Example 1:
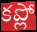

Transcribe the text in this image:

కప్లో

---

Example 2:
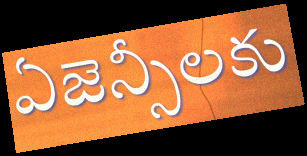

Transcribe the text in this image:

ఏజెన్సీలకు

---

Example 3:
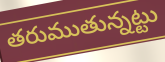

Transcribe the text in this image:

తరుముతున్నట్టు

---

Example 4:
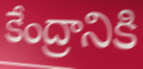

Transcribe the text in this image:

కేంద్రానికి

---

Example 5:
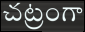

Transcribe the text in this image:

చట్రంగా